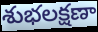
శుభలక్షణా